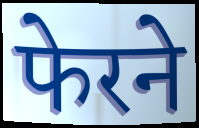
फेरने